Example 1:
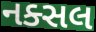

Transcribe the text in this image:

નક્સલ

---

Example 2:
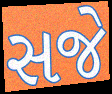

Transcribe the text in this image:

સજે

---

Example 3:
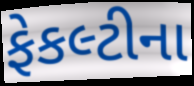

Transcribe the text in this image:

ફેકલ્ટીના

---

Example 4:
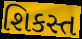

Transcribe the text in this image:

શિકસ્ત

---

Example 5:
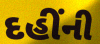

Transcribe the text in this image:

દહીંની